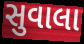
સુવાલા